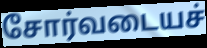
சோர்வடையச்